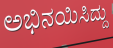
ಅಭಿನಯಿಸಿದ್ದು